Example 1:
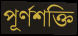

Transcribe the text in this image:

পূর্ণশক্তি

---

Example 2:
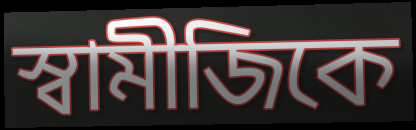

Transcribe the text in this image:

স্বামীজিকে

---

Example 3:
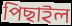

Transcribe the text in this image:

পিছাইল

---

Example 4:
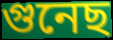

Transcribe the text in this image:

গুনেছ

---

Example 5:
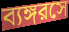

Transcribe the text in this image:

ব্যঙ্গরসে